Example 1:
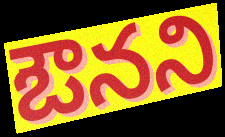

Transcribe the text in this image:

ఔనని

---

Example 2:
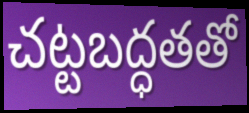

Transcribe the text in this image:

చట్టబద్ధతతో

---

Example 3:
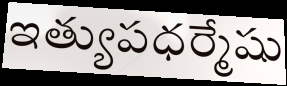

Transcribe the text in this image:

ఇత్యుపధర్మేషు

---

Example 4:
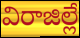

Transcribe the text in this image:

విరాజిల్లే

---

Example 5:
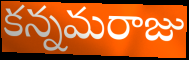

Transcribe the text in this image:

కన్నమరాజు